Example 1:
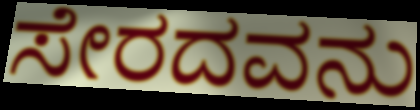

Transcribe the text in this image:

ಸೇರದವನು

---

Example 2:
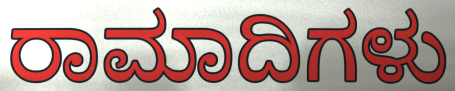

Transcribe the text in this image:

ರಾಮಾದಿಗಳು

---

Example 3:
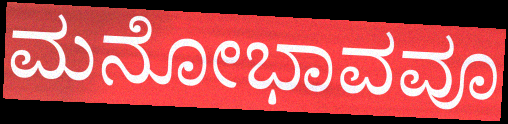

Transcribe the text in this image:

ಮನೋಭಾವವೂ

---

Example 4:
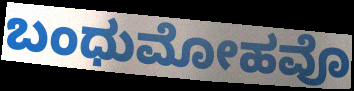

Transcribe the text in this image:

ಬಂಧುಮೋಹವೊ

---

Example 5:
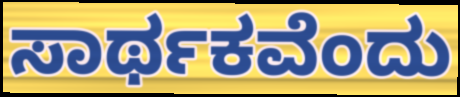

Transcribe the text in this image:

ಸಾರ್ಥಕವೆಂದು